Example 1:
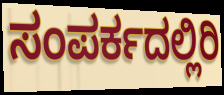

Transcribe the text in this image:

ಸಂಪರ್ಕದಲ್ಲಿರಿ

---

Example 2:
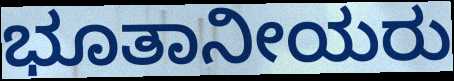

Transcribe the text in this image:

ಭೂತಾನೀಯರು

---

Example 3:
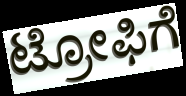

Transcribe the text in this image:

ಟ್ರೋಫಿಗೆ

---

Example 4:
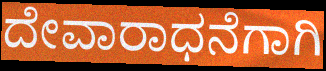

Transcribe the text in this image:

ದೇವಾರಾಧನೆಗಾಗಿ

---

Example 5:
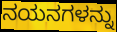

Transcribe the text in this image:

ನಯನಗಳನ್ನು